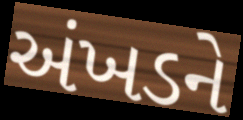
અંખડને